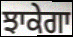
ਝਾਕੇਗਾ